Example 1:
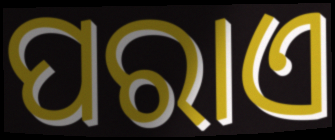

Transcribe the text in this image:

ପରାଏ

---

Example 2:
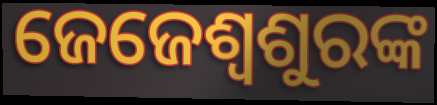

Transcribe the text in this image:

ଜେଜେଶ୍ୱଶୁରଙ୍କ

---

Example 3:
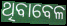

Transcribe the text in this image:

ଥିବାବେଳ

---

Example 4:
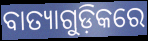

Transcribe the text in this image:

ବାତ୍ୟାଗୁଡ଼ିକରେ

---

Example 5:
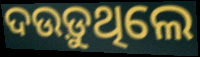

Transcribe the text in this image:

ଦଉଡ଼ୁଥିଲେ